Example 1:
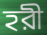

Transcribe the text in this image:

হরী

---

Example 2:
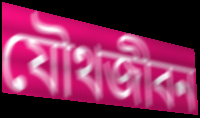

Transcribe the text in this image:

যৌথজীবন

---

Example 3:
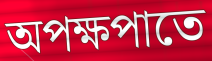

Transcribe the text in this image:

অপক্ষপাতে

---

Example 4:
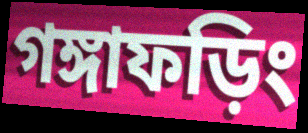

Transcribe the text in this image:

গঙ্গাফড়িং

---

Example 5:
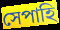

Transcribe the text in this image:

সেপাহি